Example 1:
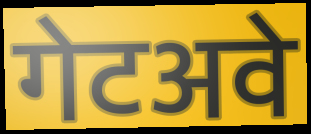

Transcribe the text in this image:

गेटअवे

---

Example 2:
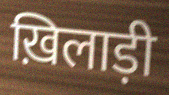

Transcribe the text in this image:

ख़िलाड़ी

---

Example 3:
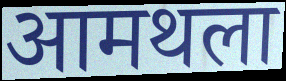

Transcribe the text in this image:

आमथला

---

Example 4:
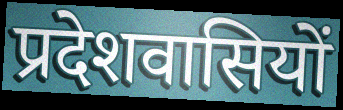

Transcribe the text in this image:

प्रदेशवासियों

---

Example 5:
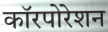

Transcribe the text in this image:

कॉरपोरेशन